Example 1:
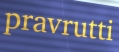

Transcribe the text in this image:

pravrutti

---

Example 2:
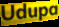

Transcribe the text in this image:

Udupa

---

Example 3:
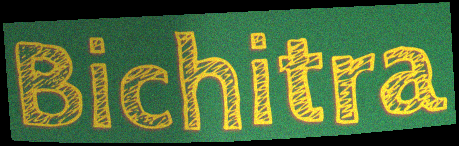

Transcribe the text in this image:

Bichitra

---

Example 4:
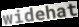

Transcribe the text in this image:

widehat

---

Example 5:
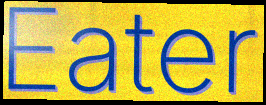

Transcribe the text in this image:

Eater